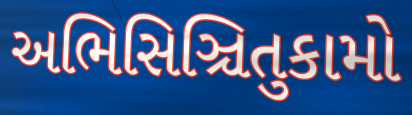
અભિસિઞ્ચિતુકામો